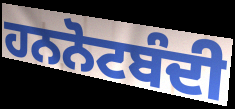
ਹਨਨੋਟਬੰਦੀ